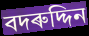
বদৰুদ্দিন